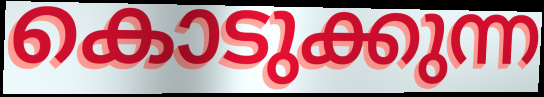
കൊടുക്കുന്ന